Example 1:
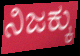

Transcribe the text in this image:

ನಿಜಕ್ಕು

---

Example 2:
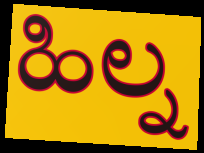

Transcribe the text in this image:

ಹಿಲ್ನ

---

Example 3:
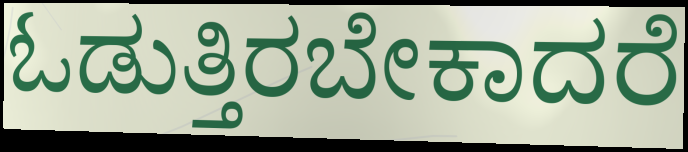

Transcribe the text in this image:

ಓಡುತ್ತಿರಬೇಕಾದರೆ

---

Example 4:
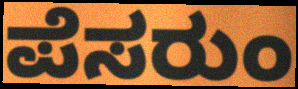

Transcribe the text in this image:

ಪೆಸರುಂ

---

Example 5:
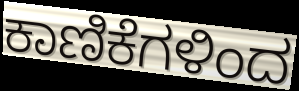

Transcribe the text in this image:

ಕಾಣಿಕೆಗಳಿಂದ